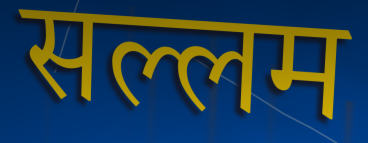
सल्‍लम